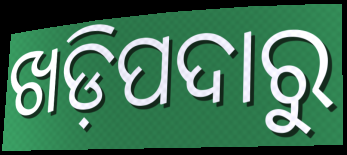
ଖଡ଼ିପଦାରୁ